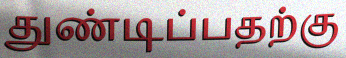
துண்டிப்பதற்கு